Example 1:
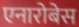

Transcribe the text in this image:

एनारोबेस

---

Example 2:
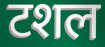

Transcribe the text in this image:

टशल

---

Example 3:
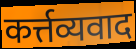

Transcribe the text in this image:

कर्त्तव्यवाद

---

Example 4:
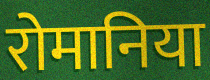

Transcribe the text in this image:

रोमानिया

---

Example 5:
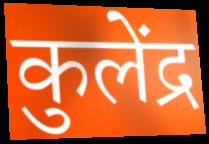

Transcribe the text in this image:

कुलेंद्र